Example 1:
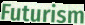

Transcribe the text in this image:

Futurism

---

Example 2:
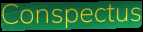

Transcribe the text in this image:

Conspectus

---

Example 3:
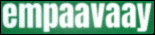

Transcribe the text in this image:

empaavaay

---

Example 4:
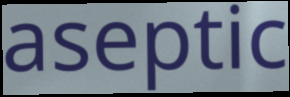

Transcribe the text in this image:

aseptic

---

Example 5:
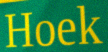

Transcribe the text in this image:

Hoek